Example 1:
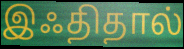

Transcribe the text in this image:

இஃதிதால்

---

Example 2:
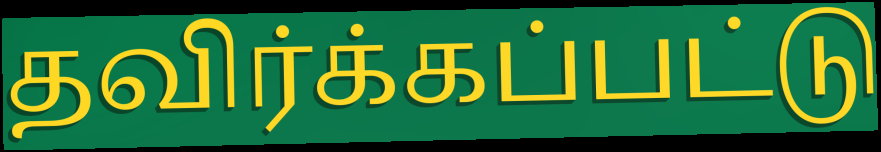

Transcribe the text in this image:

தவிர்க்கப்பட்டு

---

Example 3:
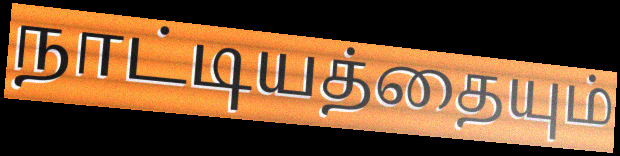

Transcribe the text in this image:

நாட்டியத்தையும்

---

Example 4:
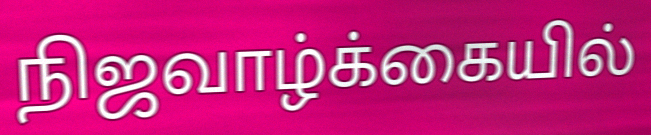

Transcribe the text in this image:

நிஜவாழ்க்கையில்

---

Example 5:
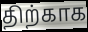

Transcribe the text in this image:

திற்காக